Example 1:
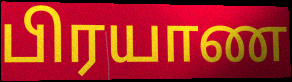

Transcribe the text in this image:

பிரயாண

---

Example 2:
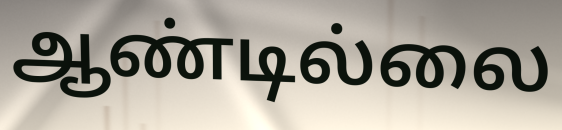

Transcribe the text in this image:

ஆண்டில்லை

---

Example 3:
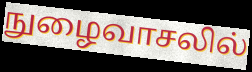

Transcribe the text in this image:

நுழைவாசலில்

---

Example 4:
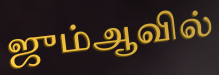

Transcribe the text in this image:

ஜும்ஆவில்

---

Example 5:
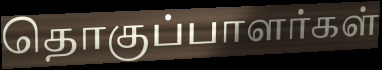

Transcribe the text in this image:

தொகுப்பாளர்கள்